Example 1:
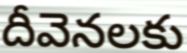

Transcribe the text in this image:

దీవెనలకు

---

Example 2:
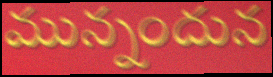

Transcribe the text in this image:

మున్నందున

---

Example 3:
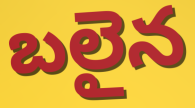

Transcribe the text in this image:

బలైన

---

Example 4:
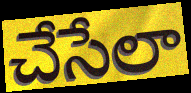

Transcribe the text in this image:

చేసేలా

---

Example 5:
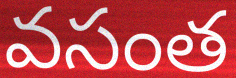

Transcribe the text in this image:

వసంత